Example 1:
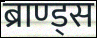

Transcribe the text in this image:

ब्राण्‍ड्स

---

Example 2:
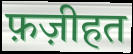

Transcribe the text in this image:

फ़ज़ीहत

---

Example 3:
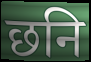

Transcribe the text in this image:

छनि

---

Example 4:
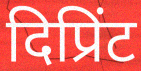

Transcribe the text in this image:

दिप्रिंट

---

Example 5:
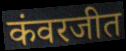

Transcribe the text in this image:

कंवरजीत